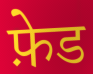
फ़ेड